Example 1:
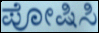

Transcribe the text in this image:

ಪೋಷಿಸಿ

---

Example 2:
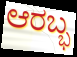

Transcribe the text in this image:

ಆರಬ್ಭ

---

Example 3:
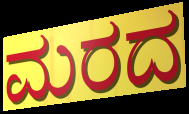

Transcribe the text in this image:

ಮರದ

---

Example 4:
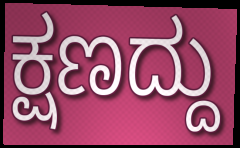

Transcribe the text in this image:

ಕ್ಷಣದ್ದು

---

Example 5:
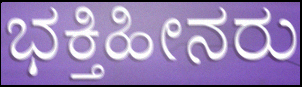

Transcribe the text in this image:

ಭಕ್ತಿಹೀನರು